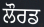
ਲੌਰਡ